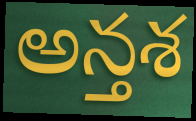
అన్తశ